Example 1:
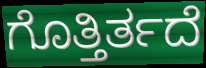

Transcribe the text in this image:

ಗೊತ್ತಿರ್ತದೆ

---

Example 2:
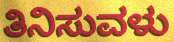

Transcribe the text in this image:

ತಿನಿಸುವಳು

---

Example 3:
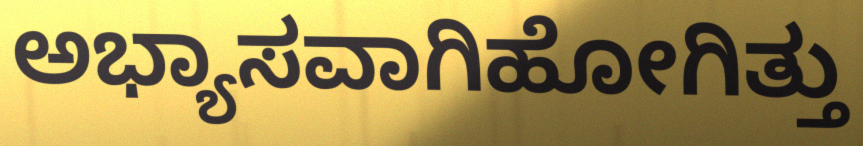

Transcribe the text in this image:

ಅಭ್ಯಾಸವಾಗಿಹೋಗಿತ್ತು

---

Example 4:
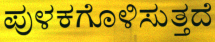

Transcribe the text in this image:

ಪುಳಕಗೊಳಿಸುತ್ತದೆ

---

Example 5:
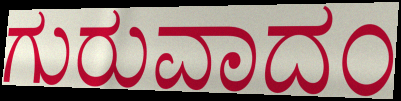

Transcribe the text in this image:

ಗುರುವಾದಂ